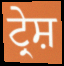
ਟ੍ਰੇਸ਼